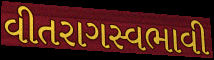
વીતરાગસ્વભાવી